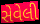
સેવેલી